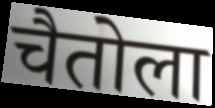
चैतोला